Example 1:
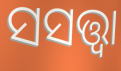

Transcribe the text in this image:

ସସତ୍ତ୍ୱା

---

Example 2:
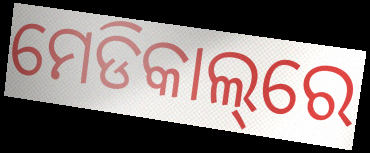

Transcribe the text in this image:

ମେଡିକାଲ୍‌ରେ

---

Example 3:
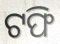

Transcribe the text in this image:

ଟଫି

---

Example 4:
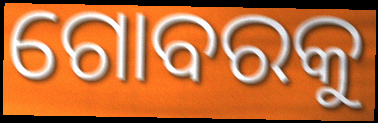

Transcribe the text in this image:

ଗୋବରକୁ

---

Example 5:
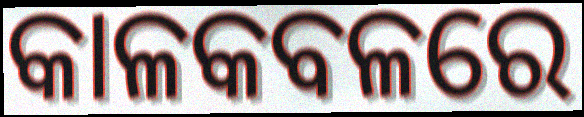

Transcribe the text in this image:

କାଳକବଳରେ